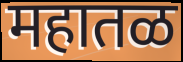
महातळ